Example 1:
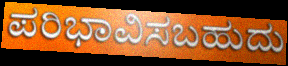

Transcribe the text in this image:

ಪರಿಭಾವಿಸಬಹುದು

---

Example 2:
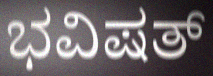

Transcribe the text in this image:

ಭವಿಷತ್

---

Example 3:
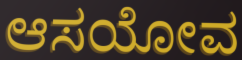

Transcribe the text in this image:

ಆಸಯೋವ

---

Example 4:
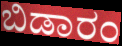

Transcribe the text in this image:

ಬಿಡಾರಂ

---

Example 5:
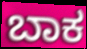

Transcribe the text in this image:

ಬಾಕ